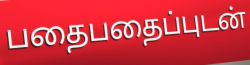
பதைபதைப்புடன்